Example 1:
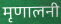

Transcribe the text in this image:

मृणालनी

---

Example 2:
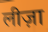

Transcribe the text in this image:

लीज़ा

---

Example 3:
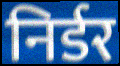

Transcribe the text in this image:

निर्डर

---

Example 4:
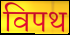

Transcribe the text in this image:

विपथ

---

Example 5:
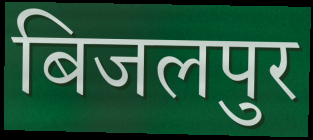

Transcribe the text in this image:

बिजलपुर